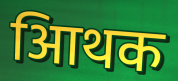
आिथक